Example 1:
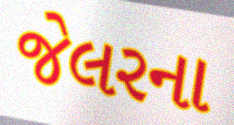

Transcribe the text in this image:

જેલરના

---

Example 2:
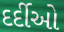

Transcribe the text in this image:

દર્દીઓ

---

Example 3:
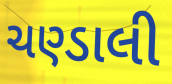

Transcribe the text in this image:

ચણ્ડાલી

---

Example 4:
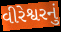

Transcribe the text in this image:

વીરેશ્વરનું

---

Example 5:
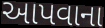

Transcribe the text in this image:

આપવાના